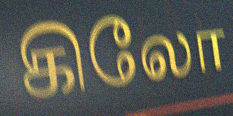
கிலோ